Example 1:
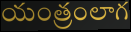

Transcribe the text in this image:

యంత్రంలాగ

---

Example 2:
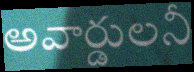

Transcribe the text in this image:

అవార్డులనీ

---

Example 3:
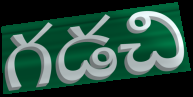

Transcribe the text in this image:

గడచి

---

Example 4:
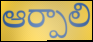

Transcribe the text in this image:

ఆర్పాలి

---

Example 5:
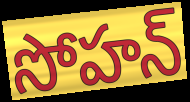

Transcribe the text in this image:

సోహన్